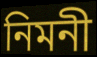
নিমনী